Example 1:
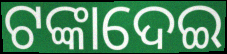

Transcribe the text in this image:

ଟଙ୍କାଦେଇ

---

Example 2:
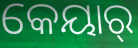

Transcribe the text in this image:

କେୟାର୍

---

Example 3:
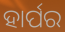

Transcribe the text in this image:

ହାର୍ପର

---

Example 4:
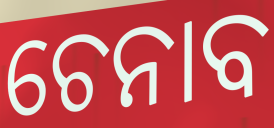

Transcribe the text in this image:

ଚେନାବ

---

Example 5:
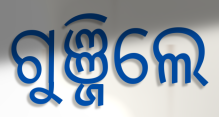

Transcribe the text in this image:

ଗୁଞ୍ଜିଲେ